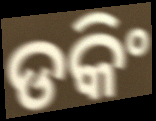
ଡକିଂ